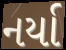
નર્યા